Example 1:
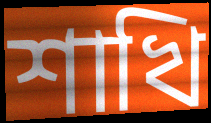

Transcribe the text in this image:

শাখি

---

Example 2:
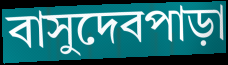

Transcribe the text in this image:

বাসুদেবপাড়া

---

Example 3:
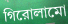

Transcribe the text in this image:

গিরোলামো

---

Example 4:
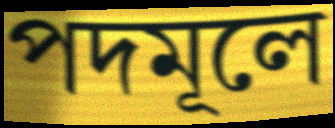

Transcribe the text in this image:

পদমূলে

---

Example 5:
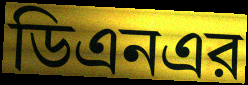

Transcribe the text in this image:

ডিএনএর